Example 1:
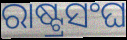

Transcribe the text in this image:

ରାଷ୍ଟ୍ରସଂଘ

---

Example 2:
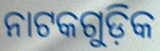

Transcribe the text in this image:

ନାଟକଗୁଡ଼ିକ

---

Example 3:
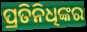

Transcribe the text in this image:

ପ୍ରତିନିଧିଙ୍କର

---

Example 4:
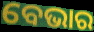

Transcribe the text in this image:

ବେଭାର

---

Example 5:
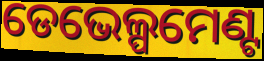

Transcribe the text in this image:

ଡେଭେଲ୍ପମେଣ୍ଟ